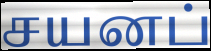
சயனப்